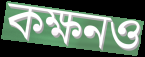
কক্ষনও